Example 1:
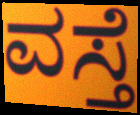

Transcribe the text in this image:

ವಸ್ತೆ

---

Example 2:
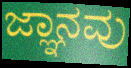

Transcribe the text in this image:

ಜ್ಞಾನವು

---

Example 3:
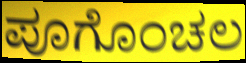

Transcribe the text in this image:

ಪೂಗೊಂಚಲ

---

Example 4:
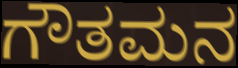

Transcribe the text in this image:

ಗೌತಮನ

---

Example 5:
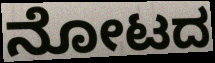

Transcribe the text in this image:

ನೋಟದ